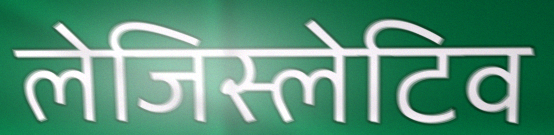
लेजिस्लेटिव